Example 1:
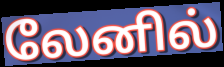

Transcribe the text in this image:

லேனில்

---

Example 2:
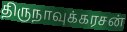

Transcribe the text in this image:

திருநாவுக்கரசன்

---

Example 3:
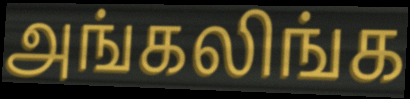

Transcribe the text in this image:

அங்கலிங்க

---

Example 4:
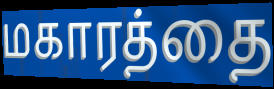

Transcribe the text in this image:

மகாரத்தை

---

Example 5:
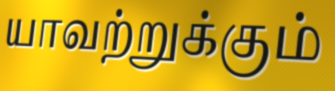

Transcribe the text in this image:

யாவற்றுக்கும்